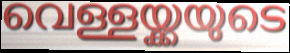
വെള്ളയ്ക്കയുടെ